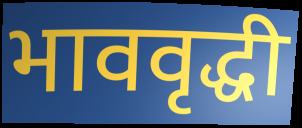
भाववृद्धी